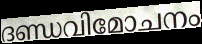
ദണ്ഡവിമോചനം